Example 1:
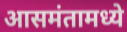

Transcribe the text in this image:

आसमंतामध्ये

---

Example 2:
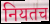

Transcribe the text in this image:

नियतच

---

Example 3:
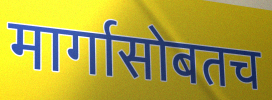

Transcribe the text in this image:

मार्गासोबतच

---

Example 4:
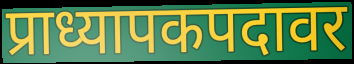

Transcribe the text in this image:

प्राध्यापकपदावर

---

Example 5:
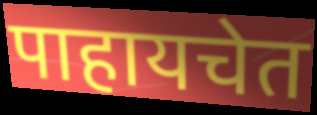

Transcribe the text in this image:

पाहायचेत